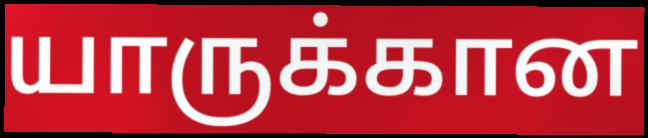
யாருக்கான